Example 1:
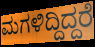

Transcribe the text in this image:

ಮಗಳಿದ್ದಿದ್ದರೆ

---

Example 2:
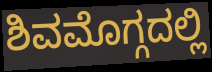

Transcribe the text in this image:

ಶಿವಮೊಗ್ಗದಲ್ಲಿ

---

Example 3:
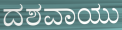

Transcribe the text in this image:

ದಶವಾಯು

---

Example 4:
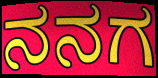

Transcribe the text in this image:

ನನಗ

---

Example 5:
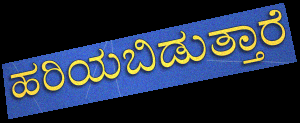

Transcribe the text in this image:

ಹರಿಯಬಿಡುತ್ತಾರೆ